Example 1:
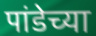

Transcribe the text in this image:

पांडेच्या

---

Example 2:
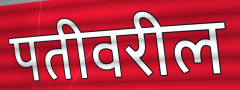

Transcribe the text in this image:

पतीवरील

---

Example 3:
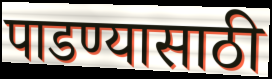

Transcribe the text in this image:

पाडण्यासाठी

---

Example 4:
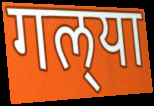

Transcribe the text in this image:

गल्या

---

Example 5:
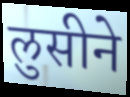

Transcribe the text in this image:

लुसीने